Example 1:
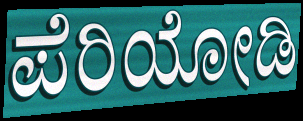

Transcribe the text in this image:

ಪೆರಿಯೋಡಿ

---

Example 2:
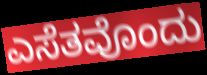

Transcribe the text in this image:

ಎಸೆತವೊಂದು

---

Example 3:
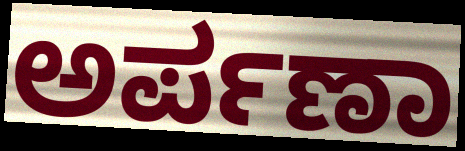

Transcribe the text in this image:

ಅರ್ಪಣಾ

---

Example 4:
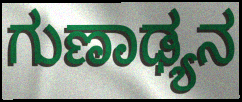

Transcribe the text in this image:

ಗುಣಾಢ್ಯನ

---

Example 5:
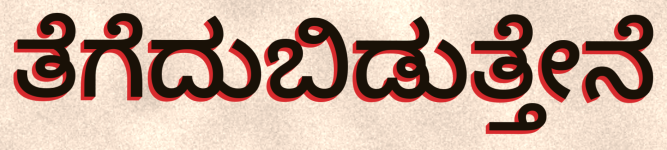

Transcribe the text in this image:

ತೆಗೆದುಬಿಡುತ್ತೇನೆ